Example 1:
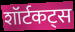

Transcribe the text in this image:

शॉर्टकट्स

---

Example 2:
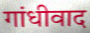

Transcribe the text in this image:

गांधीवाद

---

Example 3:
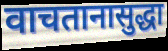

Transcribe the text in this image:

वाचतानासुद्धा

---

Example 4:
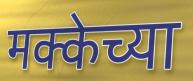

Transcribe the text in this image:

मक्केच्या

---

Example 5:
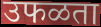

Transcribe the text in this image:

उफळता